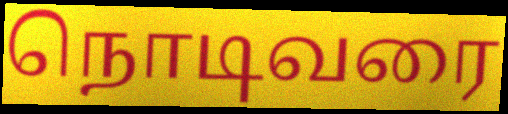
நொடிவரை